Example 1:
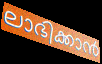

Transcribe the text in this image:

ലാഭിക്കാൻ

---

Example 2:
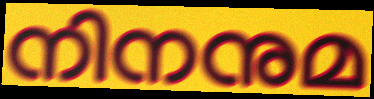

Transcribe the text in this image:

നിനനുമ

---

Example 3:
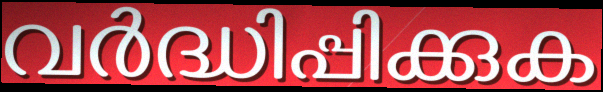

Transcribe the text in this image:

വർദ്ധിപ്പിക്കുക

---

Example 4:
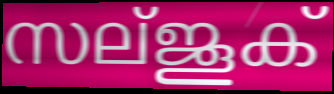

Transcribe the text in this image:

സല്ജൂക്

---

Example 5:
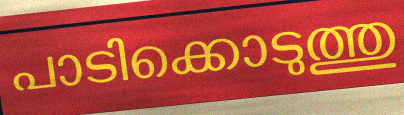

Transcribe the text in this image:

പാടിക്കൊടുത്തു